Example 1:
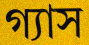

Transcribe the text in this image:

গ্যাস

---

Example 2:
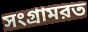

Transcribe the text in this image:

সংগ্রামরত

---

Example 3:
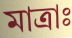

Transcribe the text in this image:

মাত্রাঃ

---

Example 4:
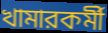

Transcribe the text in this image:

খামারকর্মী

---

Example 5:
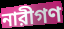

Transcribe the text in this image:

নারীগণ